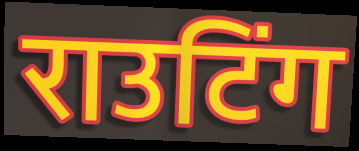
राउटिंग